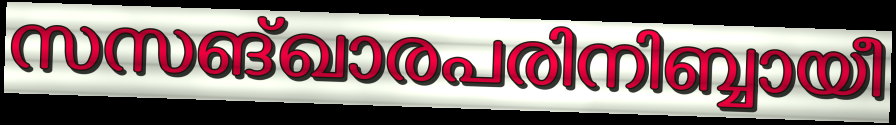
സസങ്ഖാരപരിനിബ്ബായീ